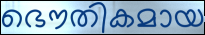
ഭൌതികമായ